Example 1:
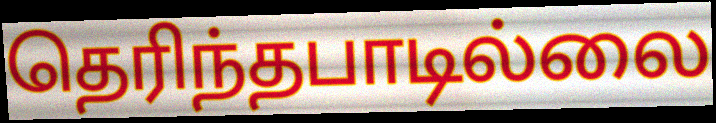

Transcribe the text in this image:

தெரிந்தபாடில்லை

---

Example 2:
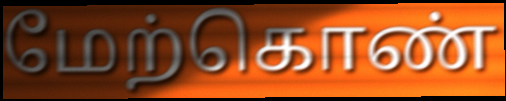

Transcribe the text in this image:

மேற்கொண்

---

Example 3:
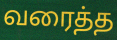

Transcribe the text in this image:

வரைத்த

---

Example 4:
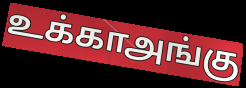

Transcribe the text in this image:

உக்காஅங்கு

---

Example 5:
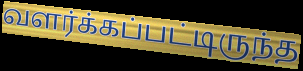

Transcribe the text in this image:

வளர்க்கப்பட்டிருந்த